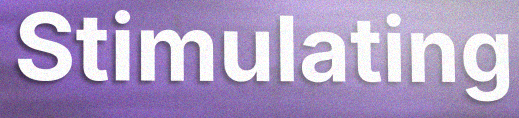
Stimulating